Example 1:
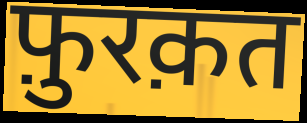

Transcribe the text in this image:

फ़ुरक़त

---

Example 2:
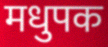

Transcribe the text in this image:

मधुपक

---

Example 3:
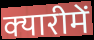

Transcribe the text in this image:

क्यारीमें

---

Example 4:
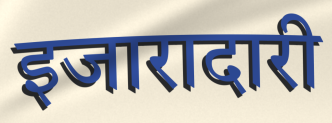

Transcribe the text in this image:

इजारादारी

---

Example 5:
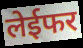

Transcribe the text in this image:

लेईफर